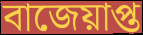
বাজেয়াপ্ত